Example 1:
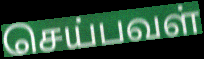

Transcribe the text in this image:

செய்பவள்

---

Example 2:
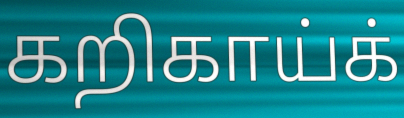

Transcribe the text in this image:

கறிகாய்க்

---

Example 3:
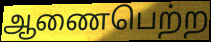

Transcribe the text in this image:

ஆணைபெற்ற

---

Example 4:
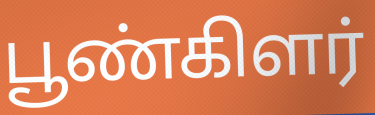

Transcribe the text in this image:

பூண்கிளர்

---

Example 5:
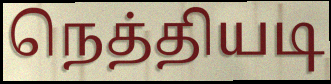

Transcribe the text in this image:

நெத்தியடி